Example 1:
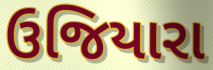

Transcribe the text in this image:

ઉજિયારા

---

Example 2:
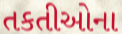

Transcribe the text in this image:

તકતીઓના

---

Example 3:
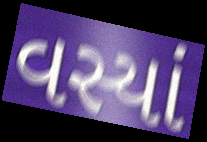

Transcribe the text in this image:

વસ્યાં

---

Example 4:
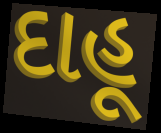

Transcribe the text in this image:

દાહૂ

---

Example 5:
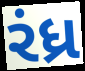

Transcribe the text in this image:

રંધ્ર